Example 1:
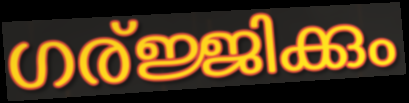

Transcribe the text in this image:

ഗര്ജ്ജിക്കും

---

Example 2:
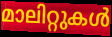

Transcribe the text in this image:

മാലിറ്റുകൾ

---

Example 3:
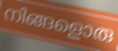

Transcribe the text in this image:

നിങ്ങളൊരു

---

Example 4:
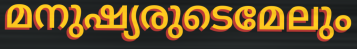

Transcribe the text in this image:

മനുഷ്യരുടെമേലും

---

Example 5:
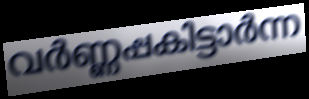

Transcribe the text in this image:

വർണ്ണപ്പകിട്ടാർന്ന